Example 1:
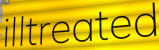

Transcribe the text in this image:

illtreated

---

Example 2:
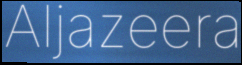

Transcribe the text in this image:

Aljazeera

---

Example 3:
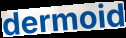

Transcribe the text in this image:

dermoid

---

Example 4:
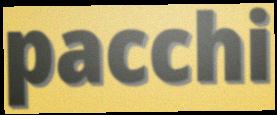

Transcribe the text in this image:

pacchi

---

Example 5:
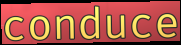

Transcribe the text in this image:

conduce